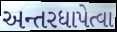
અન્તરધાપેત્વા